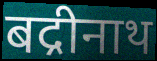
बद्रीनाथ